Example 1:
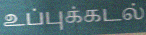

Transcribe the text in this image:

உப்புக்கடல்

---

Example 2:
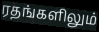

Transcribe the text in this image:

ரதங்களிலும்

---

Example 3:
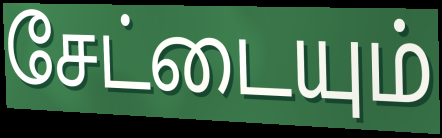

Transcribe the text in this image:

சேட்டையும்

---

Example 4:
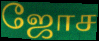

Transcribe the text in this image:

ஜோச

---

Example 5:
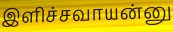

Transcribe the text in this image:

இளிச்சவாயன்னு